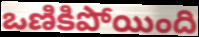
ఒణికిపోయింది